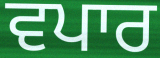
ਵਪਾਰ